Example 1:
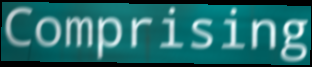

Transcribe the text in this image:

Comprising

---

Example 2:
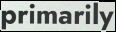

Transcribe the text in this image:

primarily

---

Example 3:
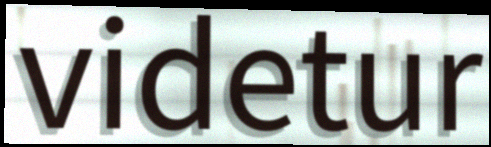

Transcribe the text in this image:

videtur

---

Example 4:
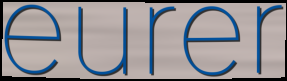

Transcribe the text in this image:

eurer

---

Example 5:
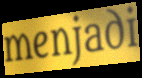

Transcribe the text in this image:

menjadi